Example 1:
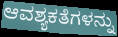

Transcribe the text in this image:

ಆವಶ್ಯಕತೆಗಳನ್ನು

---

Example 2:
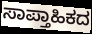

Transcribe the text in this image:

ಸಾಪ್ತಾಹಿಕದ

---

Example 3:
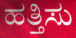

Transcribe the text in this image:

ಹತ್ತಿಸು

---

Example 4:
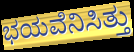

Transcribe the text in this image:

ಭಯವೆನಿಸಿತ್ತು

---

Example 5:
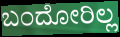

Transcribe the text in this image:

ಬಂದೋರಿಲ್ಲ